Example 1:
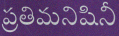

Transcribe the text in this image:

ప్రతిమనిషినీ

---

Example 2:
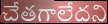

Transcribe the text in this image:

చేతగాలేదని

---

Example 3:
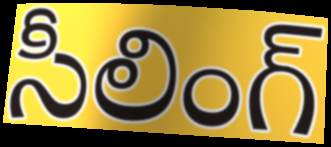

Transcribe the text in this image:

సీలింగ్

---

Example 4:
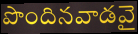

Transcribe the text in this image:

పొందినవాడవై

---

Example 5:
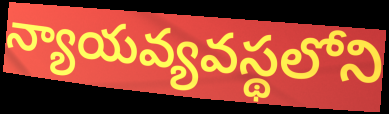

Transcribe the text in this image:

న్యాయవ్యవస్థలోని